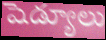
షెడ్యూలు